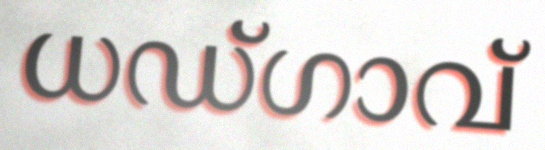
ധഡ്ഗാവ്